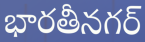
భారతీనగర్